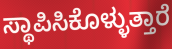
ಸ್ಥಾಪಿಸಿಕೊಳ್ಳುತ್ತಾರೆ